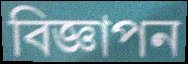
বিজ্ঞাপন